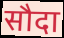
सौदा